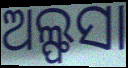
ଅଲ୍ଫସା